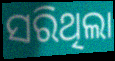
ସରିଥିଲା